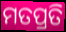
ମତପ୍ରତି